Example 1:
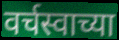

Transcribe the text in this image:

वर्चस्वाच्या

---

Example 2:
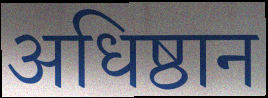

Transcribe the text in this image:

अधिष्ठान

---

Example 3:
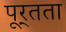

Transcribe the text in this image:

पूर्तता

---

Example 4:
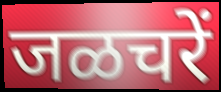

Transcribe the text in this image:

जळचरें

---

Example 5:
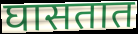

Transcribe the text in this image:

घासतात